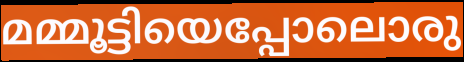
മമ്മൂട്ടിയെപ്പോലൊരു